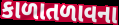
કાળાતળાવના